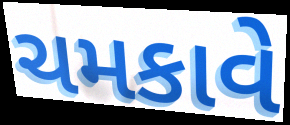
ચમકાવે